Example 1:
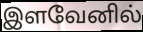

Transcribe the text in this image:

இளவேனில்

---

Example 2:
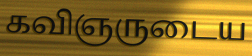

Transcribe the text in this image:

கவிஞருடைய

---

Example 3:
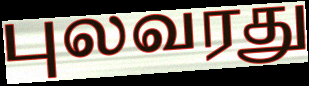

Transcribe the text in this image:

புலவரது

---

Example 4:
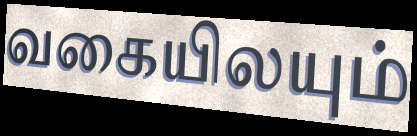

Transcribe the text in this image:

வகையிலயும்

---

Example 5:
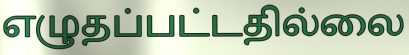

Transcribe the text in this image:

எழுதப்பட்டதில்லை